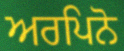
ਅਰਪਿਨੋ